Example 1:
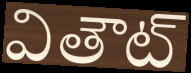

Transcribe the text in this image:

వితౌట్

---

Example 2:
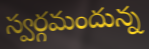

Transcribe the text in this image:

స్వర్గమందున్న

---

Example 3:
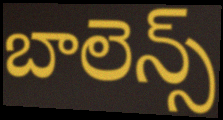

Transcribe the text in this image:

బాలెన్స్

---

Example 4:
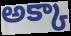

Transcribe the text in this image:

అక్కా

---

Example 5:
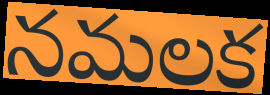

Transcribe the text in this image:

నమలక